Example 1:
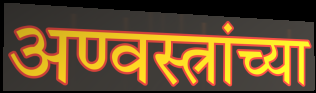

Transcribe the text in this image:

अण्वस्त्रांच्या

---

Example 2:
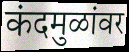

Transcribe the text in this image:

कंदमुळांवर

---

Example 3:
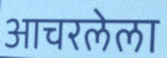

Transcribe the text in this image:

आचरलेला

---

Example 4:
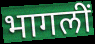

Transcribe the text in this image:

भागलीं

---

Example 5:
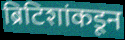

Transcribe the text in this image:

ब्रिटिशांकडून